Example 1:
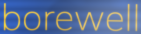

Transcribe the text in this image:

borewell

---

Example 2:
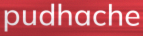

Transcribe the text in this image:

pudhache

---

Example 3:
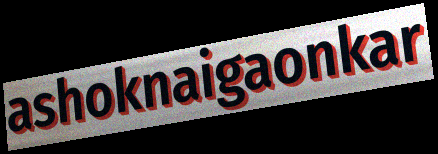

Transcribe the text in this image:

ashoknaigaonkar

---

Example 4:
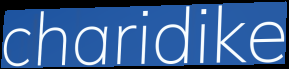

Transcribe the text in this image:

charidike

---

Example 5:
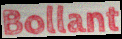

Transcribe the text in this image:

Bollant